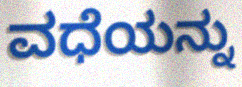
ವಧೆಯನ್ನು